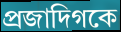
প্রজাদিগকে